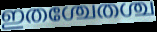
ഇതശ്ചേതശ്ച